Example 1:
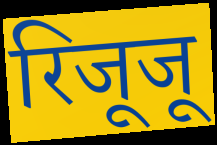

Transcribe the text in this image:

रिजूजू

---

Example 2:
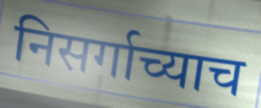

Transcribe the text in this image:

निसर्गाच्याच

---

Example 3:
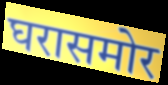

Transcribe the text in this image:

घरासमोर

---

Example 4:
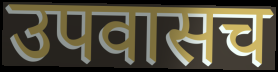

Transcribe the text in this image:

उपवासच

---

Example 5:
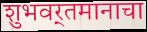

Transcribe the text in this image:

शुभवर्तमानाचा